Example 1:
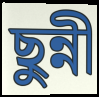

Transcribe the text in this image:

ছুন্নী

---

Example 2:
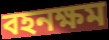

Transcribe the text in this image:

বহনক্ষম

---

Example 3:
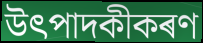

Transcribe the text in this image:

উৎপাদকীকৰণ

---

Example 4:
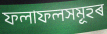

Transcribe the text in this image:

ফলাফলসমূহৰ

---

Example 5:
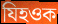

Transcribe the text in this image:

যিহওক